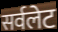
सर्वलेट